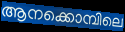
ആനക്കൊമ്പിലെ